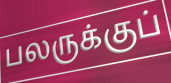
பலருக்குப்